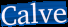
Calve